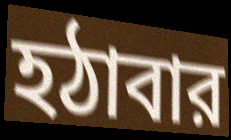
হঠাবার